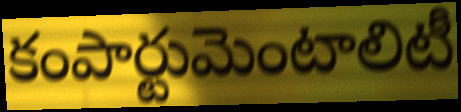
కంపార్టుమెంటాలిటీ